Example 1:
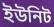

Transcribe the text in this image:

ইউনিট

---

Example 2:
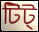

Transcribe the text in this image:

টিট্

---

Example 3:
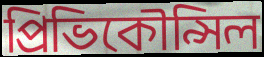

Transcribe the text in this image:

প্রিভিকৌন্সিল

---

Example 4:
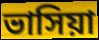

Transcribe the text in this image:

ভাসিয়া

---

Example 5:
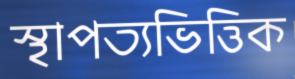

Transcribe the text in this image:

স্থাপত্যভিত্তিক